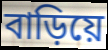
বাড়িয়ে